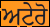
ਅਟੇਰੋ